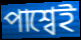
পাশ্বেই